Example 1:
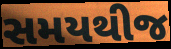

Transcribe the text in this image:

સમયથીજ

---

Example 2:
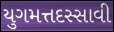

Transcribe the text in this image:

યુગમત્તદસ્સાવી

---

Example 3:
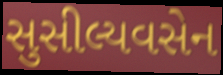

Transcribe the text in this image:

સુસીલ્યવસેન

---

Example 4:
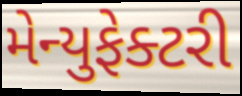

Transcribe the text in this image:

મેન્યુફેક્ટરી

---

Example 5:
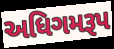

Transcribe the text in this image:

અધિગમરૂપ